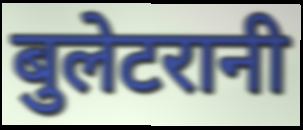
बुलेटरानी